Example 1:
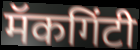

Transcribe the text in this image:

मॅकगिंटी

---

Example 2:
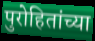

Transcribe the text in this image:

पुरोहितांच्या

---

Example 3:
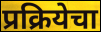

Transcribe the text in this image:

प्रक्रियेचा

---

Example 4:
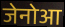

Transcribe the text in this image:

जेनोआ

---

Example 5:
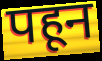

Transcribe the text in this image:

पहून